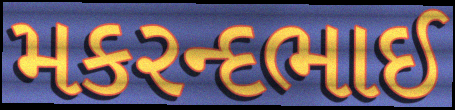
મકરન્દભાઈ